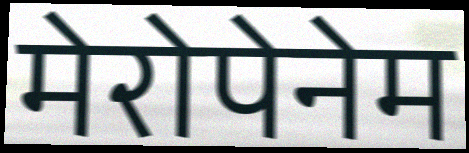
मेरोपेनेम